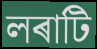
লৰাটি